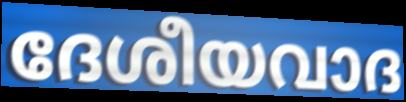
ദേശീയവാദ